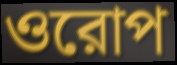
ওরোপ